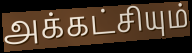
அக்கட்சியும்